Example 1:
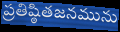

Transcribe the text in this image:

ప్రతిష్ఠితజనమును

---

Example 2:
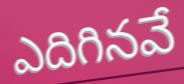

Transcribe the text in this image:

ఎదిగినవే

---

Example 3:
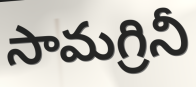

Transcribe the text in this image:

సామగ్రినీ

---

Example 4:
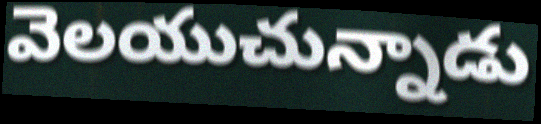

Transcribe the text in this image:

వెలయుచున్నాడు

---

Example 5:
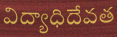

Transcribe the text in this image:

విద్యాధిదేవత